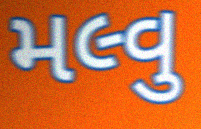
મલ્વુ